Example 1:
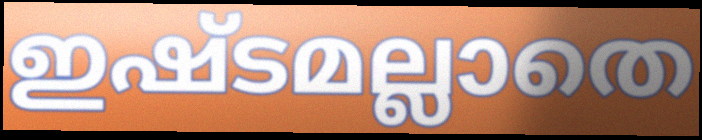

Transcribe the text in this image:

ഇഷ്ടമല്ലാതെ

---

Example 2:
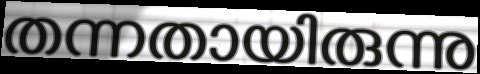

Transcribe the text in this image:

തന്നതായിരുന്നു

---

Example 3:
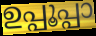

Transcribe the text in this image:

ഉപ്പൂപ്പാ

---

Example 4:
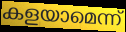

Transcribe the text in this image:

കളയാമെന്ന്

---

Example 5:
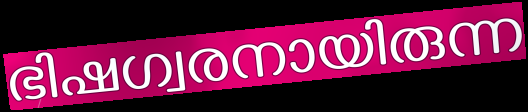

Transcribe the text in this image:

ഭിഷഗ്വരനായിരുന്ന